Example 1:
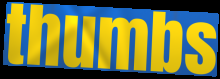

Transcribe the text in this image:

thumbs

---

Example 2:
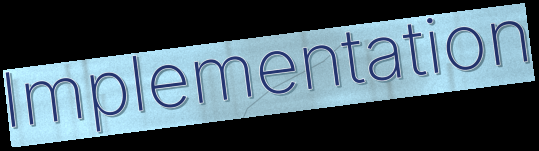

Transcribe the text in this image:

Implementation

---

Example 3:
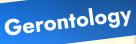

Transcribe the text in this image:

Gerontology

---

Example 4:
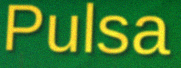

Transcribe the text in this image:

Pulsa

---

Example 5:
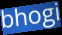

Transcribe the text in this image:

bhogi